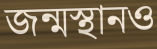
জন্মস্থানও